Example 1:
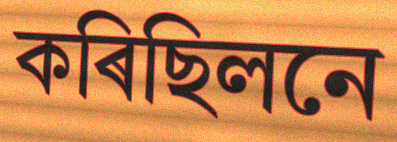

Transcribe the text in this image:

কৰিছিলনে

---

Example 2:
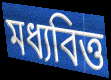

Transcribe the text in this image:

মধ্যবিত্ত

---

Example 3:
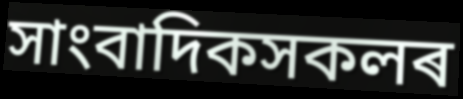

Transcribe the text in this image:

সাংবাদিকসকলৰ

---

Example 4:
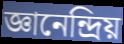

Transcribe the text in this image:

জ্ঞানেন্দ্ৰিয়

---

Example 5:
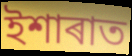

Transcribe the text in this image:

ইশাৰাত